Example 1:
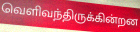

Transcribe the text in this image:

வெளிவந்திருக்கின்றன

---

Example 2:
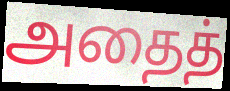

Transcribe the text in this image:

அதைத்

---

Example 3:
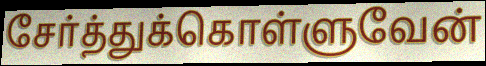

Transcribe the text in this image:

சேர்த்துக்கொள்ளுவேன்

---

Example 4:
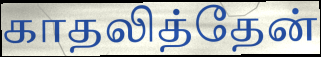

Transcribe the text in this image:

காதலித்தேன்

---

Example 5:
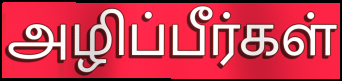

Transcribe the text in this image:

அழிப்பீர்கள்